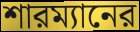
শারম্যানের